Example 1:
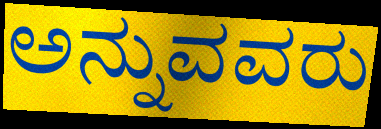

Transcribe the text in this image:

ಅನ್ನುವವರು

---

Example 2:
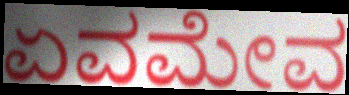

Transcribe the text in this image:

ಏವಮೇವ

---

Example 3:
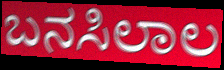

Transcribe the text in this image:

ಬನಸಿಲಾಲ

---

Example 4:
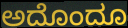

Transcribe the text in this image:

ಅದೊಂದೂ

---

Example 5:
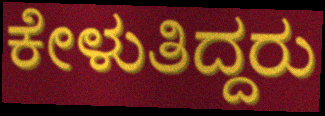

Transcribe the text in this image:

ಕೇಳುತಿದ್ದರು